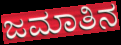
ಜಮಾತಿನ